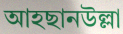
আহছানউল্লা